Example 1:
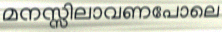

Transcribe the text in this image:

മനസ്സിലാവണപോലെ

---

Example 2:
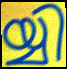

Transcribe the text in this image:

യ്യി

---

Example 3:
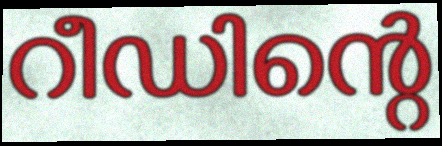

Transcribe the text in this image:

റീഡിന്റെ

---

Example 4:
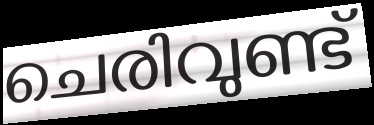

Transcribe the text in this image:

ചെരിവുണ്ട്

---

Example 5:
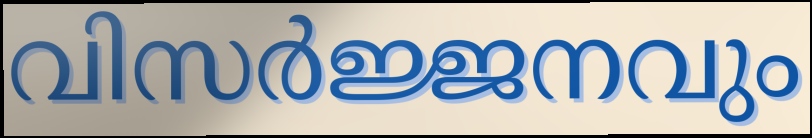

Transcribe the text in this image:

വിസർജ്ജനവും